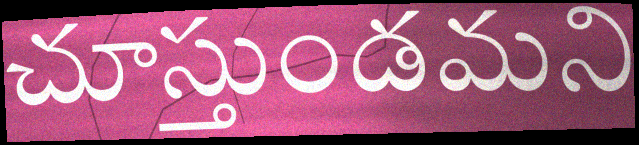
చూస్తుండమని